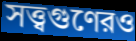
সত্ত্বগুণেরও